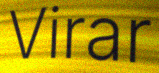
Virar